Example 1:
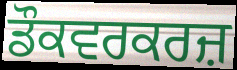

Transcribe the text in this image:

ਡੌਕਵਰਕਰਜ਼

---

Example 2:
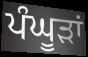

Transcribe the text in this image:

ਪੰਘੂੜਾਂ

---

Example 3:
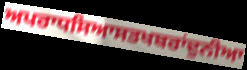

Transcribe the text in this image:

ਅਪਰਾਧਸਿਆਸਤਖਬਰਾਂਦੁਨੀਆ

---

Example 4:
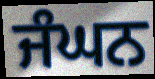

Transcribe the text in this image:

ਜੰਘਨ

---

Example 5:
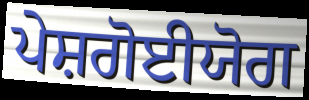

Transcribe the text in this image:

ਪੇਸ਼ਗੋਈਯੋਗ